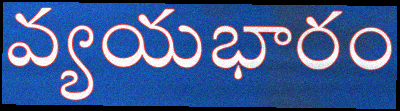
వ్యయభారం